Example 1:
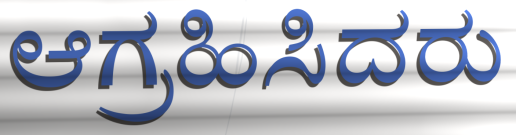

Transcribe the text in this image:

ಆಗ್ರಹಿಸಿದರು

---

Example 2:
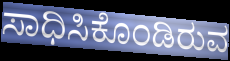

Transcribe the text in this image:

ಸಾಧಿಸಿಕೊಂಡಿರುವ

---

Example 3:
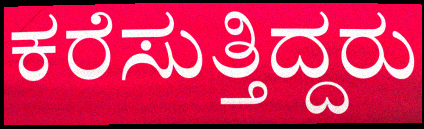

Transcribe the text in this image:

ಕರೆಸುತ್ತಿದ್ದರು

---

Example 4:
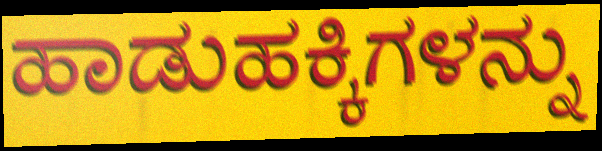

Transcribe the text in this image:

ಹಾಡುಹಕ್ಕಿಗಳನ್ನು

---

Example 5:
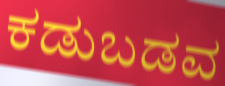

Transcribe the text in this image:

ಕಡುಬಡವ